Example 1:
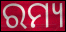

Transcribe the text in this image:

ରମ୍ୟ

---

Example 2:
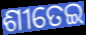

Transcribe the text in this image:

ଶୀତେଇ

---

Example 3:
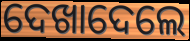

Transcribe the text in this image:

ଦେଖାଦେଲେ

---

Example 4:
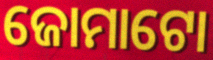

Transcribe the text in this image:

ଜୋମାଟୋ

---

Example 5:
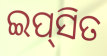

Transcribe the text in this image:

ଇପ୍‌ସିତ